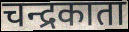
चन्द्रकाता